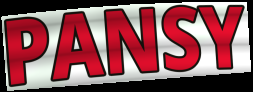
PANSY